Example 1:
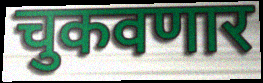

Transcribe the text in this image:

चुकवणार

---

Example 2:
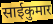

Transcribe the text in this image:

साईकुमार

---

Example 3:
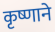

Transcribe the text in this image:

कृष्णाने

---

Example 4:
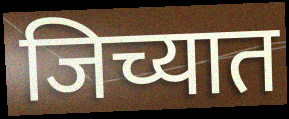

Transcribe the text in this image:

जिच्यात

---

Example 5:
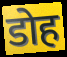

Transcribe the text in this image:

डोह